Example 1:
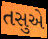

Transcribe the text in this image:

તસુએ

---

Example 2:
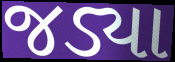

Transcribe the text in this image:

જડ્યા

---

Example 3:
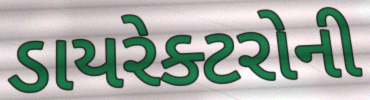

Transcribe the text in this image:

ડાયરેક્ટરોની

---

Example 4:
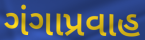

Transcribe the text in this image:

ગંગાપ્રવાહ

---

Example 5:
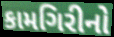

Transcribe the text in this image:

કામગિરીનો